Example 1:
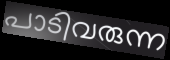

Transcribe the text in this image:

പാടിവരുന്ന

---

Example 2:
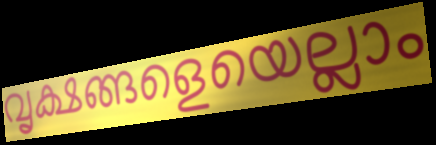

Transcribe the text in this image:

വൃക്ഷങ്ങളെയെല്ലാം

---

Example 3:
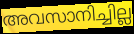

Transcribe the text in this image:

അവസാനിച്ചില്ല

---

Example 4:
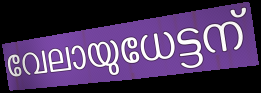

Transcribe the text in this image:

വേലായുധേട്ടന്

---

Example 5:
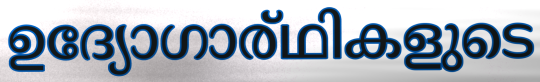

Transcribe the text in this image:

ഉദ്യോഗാര്ഥികളുടെ